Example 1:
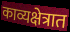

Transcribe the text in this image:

काव्यक्षेत्रात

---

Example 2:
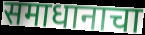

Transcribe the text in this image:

समाधानाचा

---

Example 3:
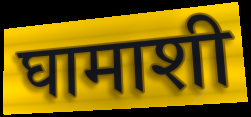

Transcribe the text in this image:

घामाशी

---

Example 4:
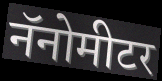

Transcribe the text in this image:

नॅनोमीटर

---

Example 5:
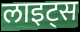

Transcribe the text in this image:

लाइट्स